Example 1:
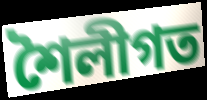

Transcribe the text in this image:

শৈলীগত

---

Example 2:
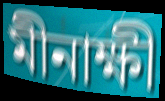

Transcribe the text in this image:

মীনাক্ষী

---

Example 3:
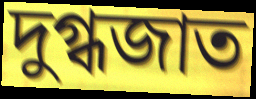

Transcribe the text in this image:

দুগ্ধজাত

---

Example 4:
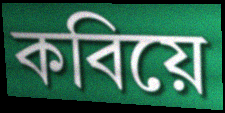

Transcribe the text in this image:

কবিয়ে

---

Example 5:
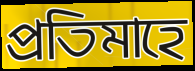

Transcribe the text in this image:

প্ৰতিমাহে